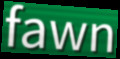
fawn